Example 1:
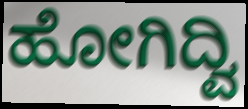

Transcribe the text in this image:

ಹೋಗಿದ್ವಿ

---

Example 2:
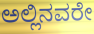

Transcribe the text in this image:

ಅಲ್ಲಿನವರೇ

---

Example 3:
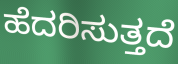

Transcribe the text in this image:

ಹೆದರಿಸುತ್ತದೆ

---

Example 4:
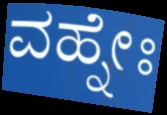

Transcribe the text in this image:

ವಹ್ನೇಃ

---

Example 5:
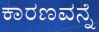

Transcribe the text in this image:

ಕಾರಣವನ್ನೆ